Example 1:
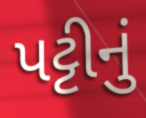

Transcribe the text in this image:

પટ્ટીનું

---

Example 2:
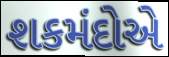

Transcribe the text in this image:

શકમંદોએ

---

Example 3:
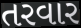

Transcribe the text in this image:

તરવાર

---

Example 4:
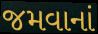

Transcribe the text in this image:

જમવાનાં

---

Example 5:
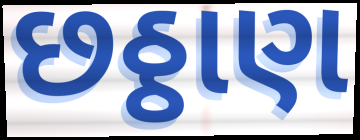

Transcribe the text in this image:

છઠ્ઠાણ